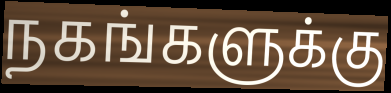
நகங்களுக்கு